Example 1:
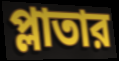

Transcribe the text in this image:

প্লাতার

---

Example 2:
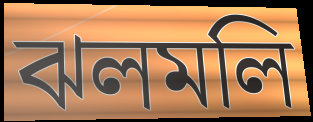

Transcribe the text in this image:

ঝলমলি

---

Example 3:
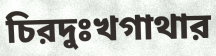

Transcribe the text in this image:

চিরদুঃখগাথার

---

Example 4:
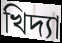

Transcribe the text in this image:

খিদ্যা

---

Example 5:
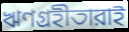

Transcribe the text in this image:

ঋণগ্রহীতারাই